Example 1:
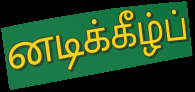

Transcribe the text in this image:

னடிக்கீழ்ப்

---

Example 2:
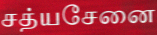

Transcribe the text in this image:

சத்யசேனை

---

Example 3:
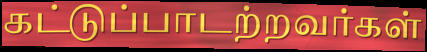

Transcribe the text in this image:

கட்டுப்பாடற்றவர்கள்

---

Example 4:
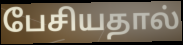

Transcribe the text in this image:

பேசியதால்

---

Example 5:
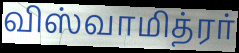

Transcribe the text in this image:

விஸ்வாமித்ரர்